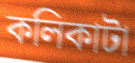
কলিকাটা